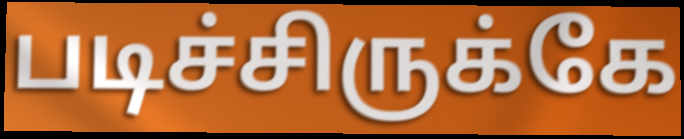
படிச்சிருக்கே